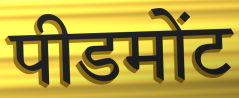
पीडमोंट